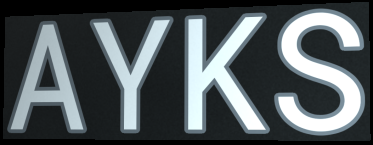
AYKS